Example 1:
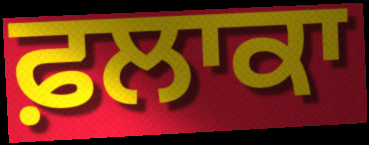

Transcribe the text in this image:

ਫ਼ਲਾਕਾ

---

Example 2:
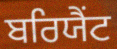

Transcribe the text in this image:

ਬਰਿਯੈਂਟ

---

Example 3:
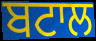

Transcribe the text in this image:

ਬਟਾਲ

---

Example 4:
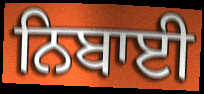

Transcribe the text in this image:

ਨਿਬਾਈ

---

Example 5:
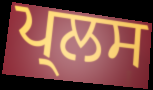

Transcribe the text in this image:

ਪ੍ਲਸ